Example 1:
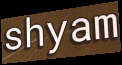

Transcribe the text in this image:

shyam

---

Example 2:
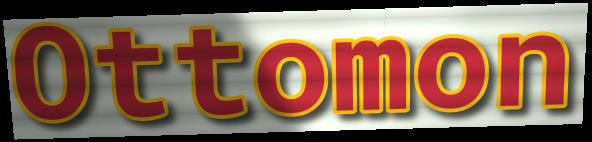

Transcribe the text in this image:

Ottomon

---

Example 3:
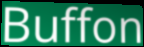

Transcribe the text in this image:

Buffon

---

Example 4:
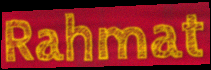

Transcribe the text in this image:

Rahmat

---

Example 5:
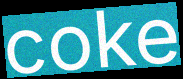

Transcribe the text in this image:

coke